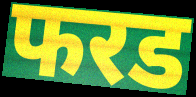
फरड